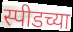
स्पीडच्या